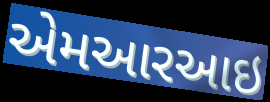
એમઆરઆઇ